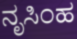
ನೃಸಿಂಹ